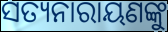
ସତ୍ୟନାରାୟଣଙ୍କୁ